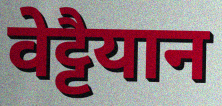
वेट्टैयान